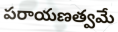
పరాయణత్వమే